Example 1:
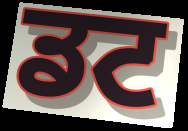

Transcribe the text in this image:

ਡਟ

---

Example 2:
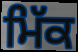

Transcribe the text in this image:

ਮਿੱਕ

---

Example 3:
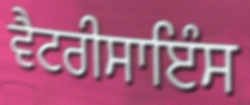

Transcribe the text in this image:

ਵੈਟਰੀਸਾਇੰਸ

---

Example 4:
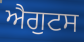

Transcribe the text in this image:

ਐਗੁਟਸ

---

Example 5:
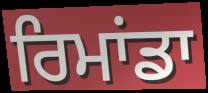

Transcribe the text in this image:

ਰਿਮਾਂਡਾ